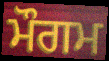
ਮੌਗਮ